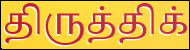
திருத்திக்